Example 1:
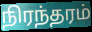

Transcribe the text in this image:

நிரந்தரம்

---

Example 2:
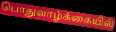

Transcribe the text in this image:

பொதுவாழ்க்கையில்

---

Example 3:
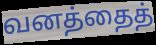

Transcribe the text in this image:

வனத்தைத்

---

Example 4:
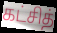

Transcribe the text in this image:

கட்சித்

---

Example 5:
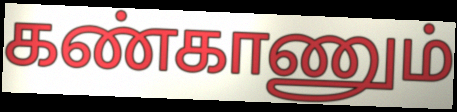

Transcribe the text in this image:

கண்காணும்